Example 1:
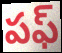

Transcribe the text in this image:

పఫ్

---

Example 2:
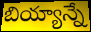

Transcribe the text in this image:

బియ్యాన్నే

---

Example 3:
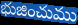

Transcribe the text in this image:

భుజించుము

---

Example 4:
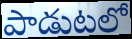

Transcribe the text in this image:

పాడుటలో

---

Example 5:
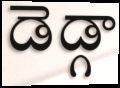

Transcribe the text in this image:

డెడ్గా